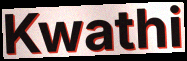
Kwathi